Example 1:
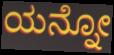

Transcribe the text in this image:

ಯನ್ನೋ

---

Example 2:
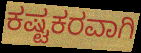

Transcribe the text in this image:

ಕಷ್ಟಕರವಾಗಿ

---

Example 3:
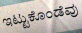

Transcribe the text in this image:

ಇಟ್ಟುಕೊಂಡೆವು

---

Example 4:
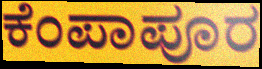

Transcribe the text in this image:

ಕೆಂಪಾಪೂರ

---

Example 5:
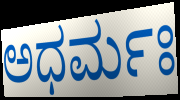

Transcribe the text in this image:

ಅಧರ್ಮಃ